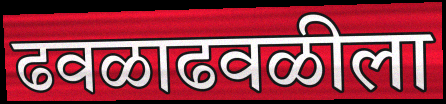
ढवळाढवळीला